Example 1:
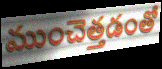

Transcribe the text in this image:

ముంచెత్తడంతో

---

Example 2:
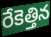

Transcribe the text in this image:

రేకెత్తిన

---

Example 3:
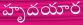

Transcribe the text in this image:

హృదయార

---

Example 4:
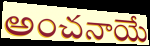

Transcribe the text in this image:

అంచనాయే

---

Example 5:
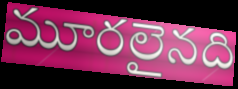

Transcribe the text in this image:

మూరలైనది